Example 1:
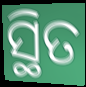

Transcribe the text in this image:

ସ୍ଥିତ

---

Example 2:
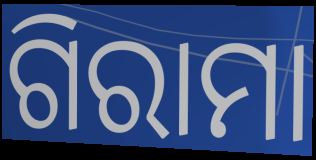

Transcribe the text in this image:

ଗିରାମା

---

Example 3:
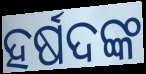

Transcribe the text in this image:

ହର୍ଷଦଙ୍କ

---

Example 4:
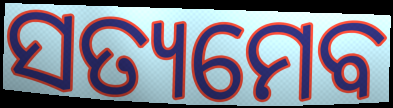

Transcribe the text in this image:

ସତ୍ୟମେବ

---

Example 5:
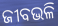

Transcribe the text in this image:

ଜୀବଭଳି